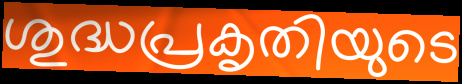
ശുദ്ധപ്രകൃതിയുടെ